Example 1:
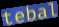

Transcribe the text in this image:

tebal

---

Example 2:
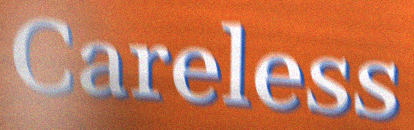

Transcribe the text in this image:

Careless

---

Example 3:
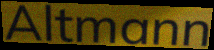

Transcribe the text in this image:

Altmann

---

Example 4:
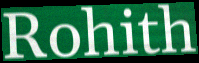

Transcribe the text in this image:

Rohith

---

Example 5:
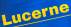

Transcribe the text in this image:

Lucerne